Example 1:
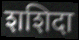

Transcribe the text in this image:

शशिदा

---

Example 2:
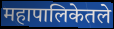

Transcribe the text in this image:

महापालिकेतले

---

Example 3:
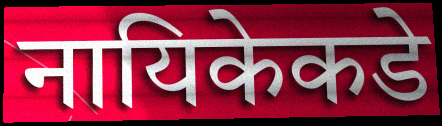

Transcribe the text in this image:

नायिकेकडे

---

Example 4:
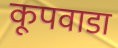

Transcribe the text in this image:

कूपवाडा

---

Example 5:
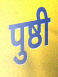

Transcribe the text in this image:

पुष्ठी